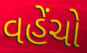
વહેંચો